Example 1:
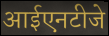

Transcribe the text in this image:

आईएनटीजे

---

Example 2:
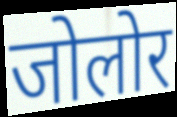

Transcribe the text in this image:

जोलोर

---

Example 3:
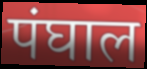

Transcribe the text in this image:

पंघाल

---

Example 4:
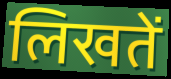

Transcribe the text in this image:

लिखतें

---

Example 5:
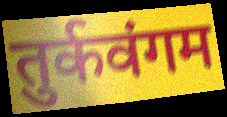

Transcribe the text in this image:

तुर्कवंगम